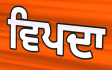
ਵਿਪਦਾ